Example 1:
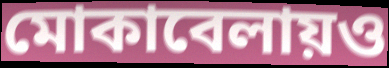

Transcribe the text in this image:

মোকাবেলায়ও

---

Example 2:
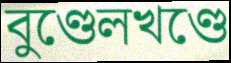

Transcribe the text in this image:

বুণ্ডেলখণ্ডে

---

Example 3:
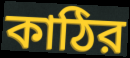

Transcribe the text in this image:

কাঠির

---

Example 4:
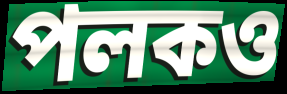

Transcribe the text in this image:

পলকও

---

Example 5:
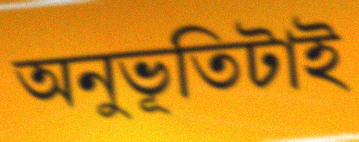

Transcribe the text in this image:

অনুভূতিটাই